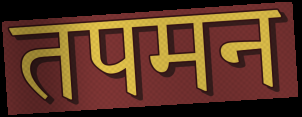
तपमन